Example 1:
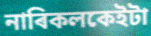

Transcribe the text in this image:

নাৰিকলকেইটা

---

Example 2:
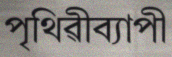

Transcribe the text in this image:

পৃথিৱীব্যাপী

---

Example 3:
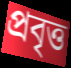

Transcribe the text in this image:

প্ৰবৃত্ত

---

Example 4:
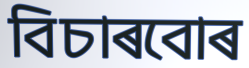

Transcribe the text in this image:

বিচাৰবোৰ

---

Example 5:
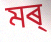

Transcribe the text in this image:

মৰ্